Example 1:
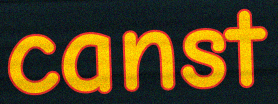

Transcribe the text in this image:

canst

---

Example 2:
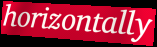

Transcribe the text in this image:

horizontally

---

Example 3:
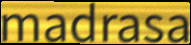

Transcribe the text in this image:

madrasa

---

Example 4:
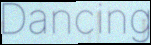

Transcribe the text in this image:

Dancing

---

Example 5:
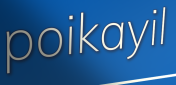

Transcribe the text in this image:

poikayil